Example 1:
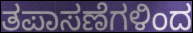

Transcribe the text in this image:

ತಪಾಸಣೆಗಳಿಂದ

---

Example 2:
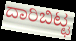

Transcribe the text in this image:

ದಾರಿಬಿಟ್ಟ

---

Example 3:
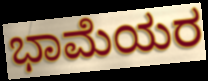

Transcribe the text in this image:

ಭಾಮೆಯರ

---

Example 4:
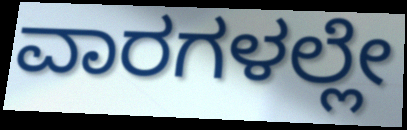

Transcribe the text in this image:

ವಾರಗಳಲ್ಲೇ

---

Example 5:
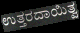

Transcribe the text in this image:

ಉತ್ತರದಾಯಿತ್ವ